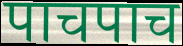
पाचपाच